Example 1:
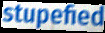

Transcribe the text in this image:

stupefied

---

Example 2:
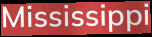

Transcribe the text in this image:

Mississippi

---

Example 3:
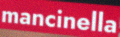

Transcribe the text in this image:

mancinella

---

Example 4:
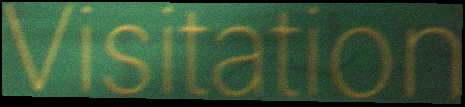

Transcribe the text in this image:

Visitation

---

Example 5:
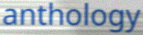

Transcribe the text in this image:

anthology